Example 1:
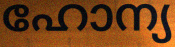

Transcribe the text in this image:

ഹോന്യ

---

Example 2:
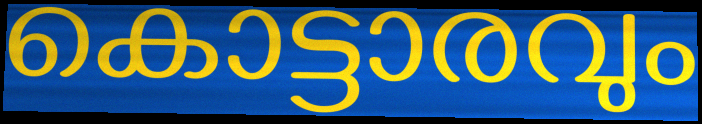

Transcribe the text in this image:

കൊട്ടാരവും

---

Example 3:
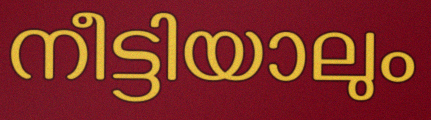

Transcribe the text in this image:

നീട്ടിയാലും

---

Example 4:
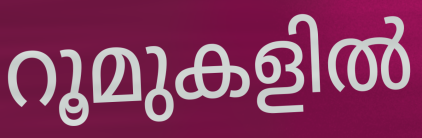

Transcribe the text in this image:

റൂമുകളിൽ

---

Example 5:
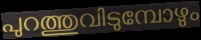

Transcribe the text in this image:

പുറത്തുവിടുമ്പോഴും